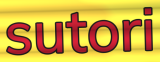
sutori